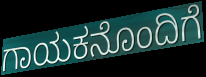
ಗಾಯಕನೊಂದಿಗೆ